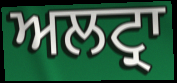
ਅਲਟ੍ਰਾ